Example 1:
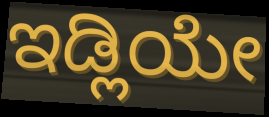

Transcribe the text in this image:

ಇಡ್ಲಿಯೇ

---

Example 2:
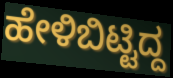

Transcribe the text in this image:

ಹೇಳಿಬಿಟ್ಟಿದ್ದ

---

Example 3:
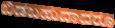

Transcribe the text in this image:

ಬಿಡಬಹುದಾದರೂ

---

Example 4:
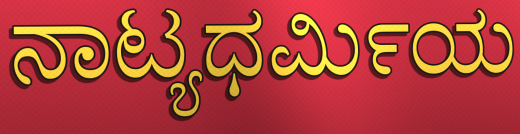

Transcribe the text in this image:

ನಾಟ್ಯಧರ್ಮಿಯ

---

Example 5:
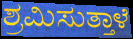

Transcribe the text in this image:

ಶ್ರಮಿಸುತ್ತಾಳೆ